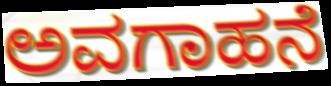
ಅವಗಾಹನೆ